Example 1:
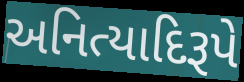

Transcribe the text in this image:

અનિત્યાદિરૂપે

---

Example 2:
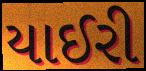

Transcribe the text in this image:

યાઈરી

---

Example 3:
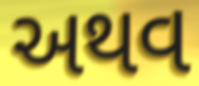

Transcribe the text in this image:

અથવ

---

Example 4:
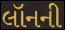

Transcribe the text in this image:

લૉનની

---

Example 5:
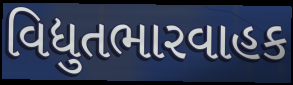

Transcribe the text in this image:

વિદ્યુતભારવાહક